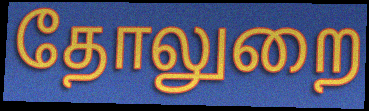
தோலுறை